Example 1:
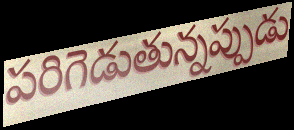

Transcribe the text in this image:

పరిగెడుతున్నప్పుడు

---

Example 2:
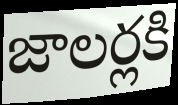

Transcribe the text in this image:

జాలర్లకి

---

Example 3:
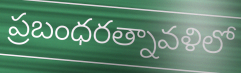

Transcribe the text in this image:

ప్రబంధరత్నావళిలో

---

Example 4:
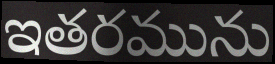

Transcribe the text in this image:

ఇతరమును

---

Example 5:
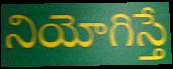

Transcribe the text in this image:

నియోగిస్తే